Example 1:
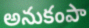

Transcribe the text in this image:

అనుకంపా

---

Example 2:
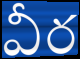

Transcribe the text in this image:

వీర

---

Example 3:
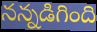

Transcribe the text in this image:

నన్నడిగింది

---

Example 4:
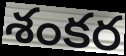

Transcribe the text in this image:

శంకర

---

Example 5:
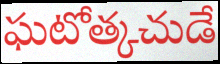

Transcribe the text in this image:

ఘటోత్కచుడే